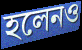
হলেনও